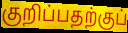
குறிப்பதற்குப்